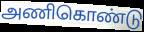
அணிகொண்டு